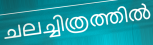
ചലച്ചിത്രത്തിൽ